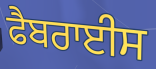
ਫੈਬਰਾਈਸ